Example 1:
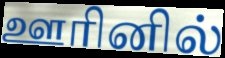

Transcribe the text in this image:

ஊரினில்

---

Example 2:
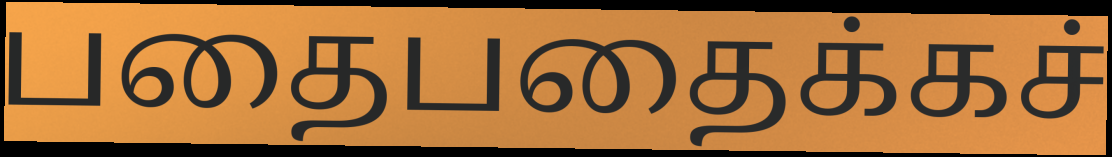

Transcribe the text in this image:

பதைபதைக்கச்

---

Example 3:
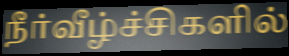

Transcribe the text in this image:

நீர்வீழ்ச்சிகளில்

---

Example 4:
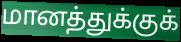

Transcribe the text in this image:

மானத்துக்குக்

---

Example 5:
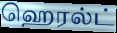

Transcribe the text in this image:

ஹெரல்ட்